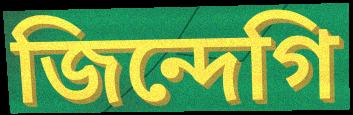
জিন্দেগি